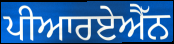
ਪੀਆਰਏਐੱਨ